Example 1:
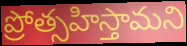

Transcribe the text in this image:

ప్రోత్సహిస్తామని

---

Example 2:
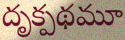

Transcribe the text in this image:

దృక్పథమూ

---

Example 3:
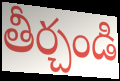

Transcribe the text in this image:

తీర్చండి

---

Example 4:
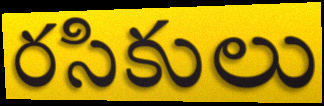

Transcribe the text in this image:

రసికులు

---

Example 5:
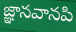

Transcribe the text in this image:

జ్ఞానవానపి